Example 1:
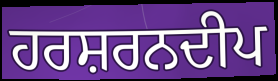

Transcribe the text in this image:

ਹਰਸ਼ਰਨਦੀਪ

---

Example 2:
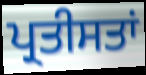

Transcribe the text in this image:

ਪ੍ਰਤੀਸਤਾਂ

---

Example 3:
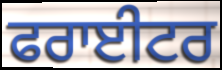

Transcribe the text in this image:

ਫਰਾਈਟਰ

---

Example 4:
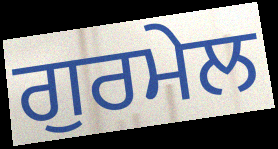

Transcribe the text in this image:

ਗੁਰਮੇਲ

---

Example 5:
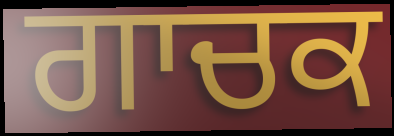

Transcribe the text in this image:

ਗਾਚਕ